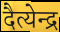
दैत्येन्द्र